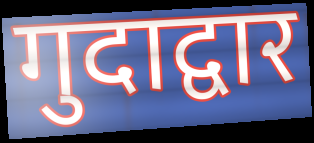
गुदाद्वार